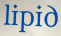
lipid